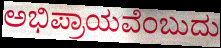
ಅಭಿಪ್ರಾಯವೆಂಬುದು